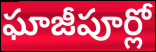
ఘాజీపూర్లో